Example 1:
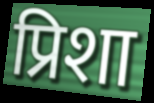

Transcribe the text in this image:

प्रिशा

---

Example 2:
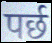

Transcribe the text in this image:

पर्छ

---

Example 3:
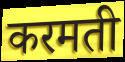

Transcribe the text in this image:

करमती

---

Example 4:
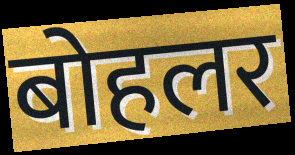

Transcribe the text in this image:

बोहलर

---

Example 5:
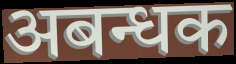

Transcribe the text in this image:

अबन्धक